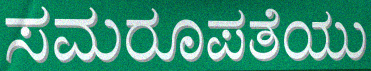
ಸಮರೂಪತೆಯು